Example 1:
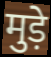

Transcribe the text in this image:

मुड़े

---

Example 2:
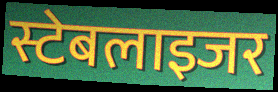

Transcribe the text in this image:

स्टेबलाइजर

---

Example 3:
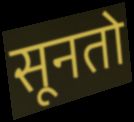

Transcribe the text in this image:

सूनतो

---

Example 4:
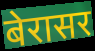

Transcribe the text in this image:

बेरासर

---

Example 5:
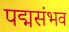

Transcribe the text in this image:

पद्मसंभव